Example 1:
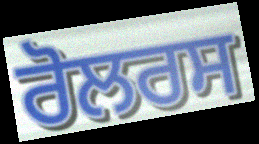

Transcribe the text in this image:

ਰੋਲਰਸ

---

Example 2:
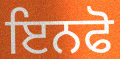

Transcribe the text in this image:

ਇਨਫੋ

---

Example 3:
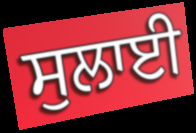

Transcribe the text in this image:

ਸੁਲਾਈ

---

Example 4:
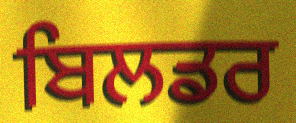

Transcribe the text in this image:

ਬਿਲਡਰ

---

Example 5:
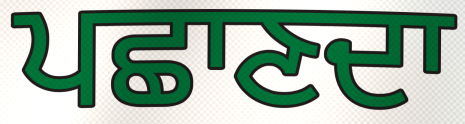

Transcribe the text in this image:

ਪਛਾਣਦਾ